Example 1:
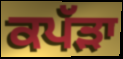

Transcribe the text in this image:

ਕਪੱੜਾ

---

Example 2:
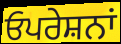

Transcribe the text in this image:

ਓਪਰੇਸ਼ਨਾਂ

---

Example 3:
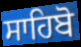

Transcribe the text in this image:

ਸਾਹਿਬੋ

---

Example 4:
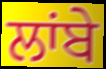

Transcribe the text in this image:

ਲਾਂਬੇ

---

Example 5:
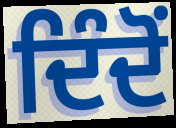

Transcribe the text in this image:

ਦਿੰਦੋਂ